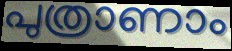
പുത്രാണാം